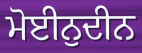
ਮੋਈਨੁਦੀਨ